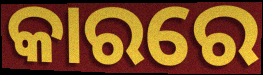
କାରରେ